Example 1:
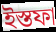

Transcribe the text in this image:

ইস্তফা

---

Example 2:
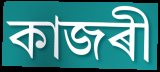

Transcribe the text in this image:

কাজৰী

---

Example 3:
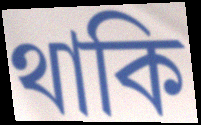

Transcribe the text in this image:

থাকি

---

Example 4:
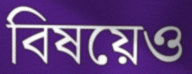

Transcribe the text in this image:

বিষয়েও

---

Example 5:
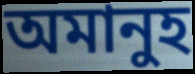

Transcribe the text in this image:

অমানুহ